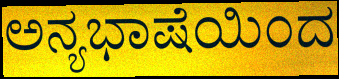
ಅನ್ಯಭಾಷೆಯಿಂದ